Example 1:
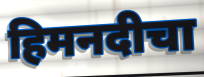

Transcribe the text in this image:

हिमनदीचा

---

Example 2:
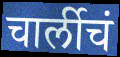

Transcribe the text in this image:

चार्लीचं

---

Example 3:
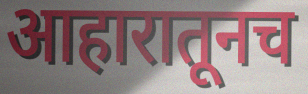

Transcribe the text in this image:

आहारातूनच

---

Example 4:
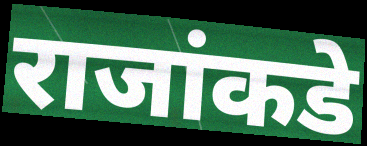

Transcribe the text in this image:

राजांकडे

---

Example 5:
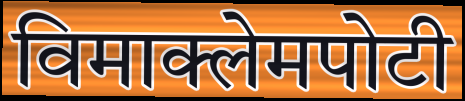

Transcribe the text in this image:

विमाक्लेमपोटी